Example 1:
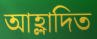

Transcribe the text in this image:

আহ্লাদিত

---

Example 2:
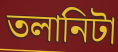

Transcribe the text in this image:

তলানিটা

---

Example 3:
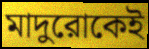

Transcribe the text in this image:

মাদুরোকেই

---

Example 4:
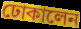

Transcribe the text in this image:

ঢোকালেন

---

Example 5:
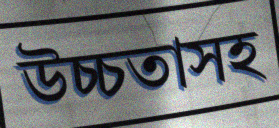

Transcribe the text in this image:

উচ্চতাসহ